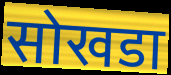
सोखडा